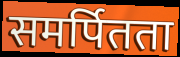
समर्पितता